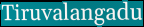
Tiruvalangadu